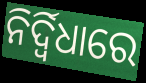
ନିର୍ଦ୍ୱିଧାରେ